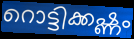
റൊട്ടിക്കഷ്ണം